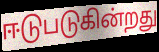
ஈடுபடுகின்றது